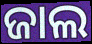
ଜାଲ